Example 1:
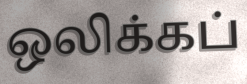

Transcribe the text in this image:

ஒலிக்கப்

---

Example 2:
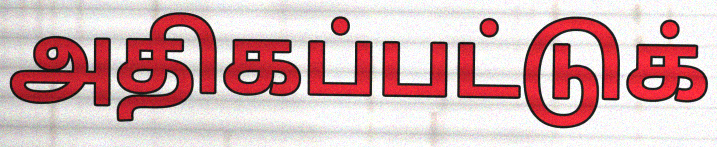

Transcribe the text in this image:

அதிகப்பட்டுக்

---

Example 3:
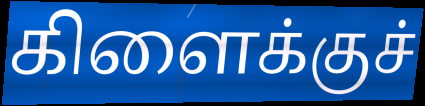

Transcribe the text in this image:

கிளைக்குச்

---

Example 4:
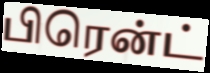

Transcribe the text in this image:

பிரென்ட்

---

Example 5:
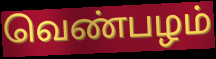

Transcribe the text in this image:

வெண்பழம்